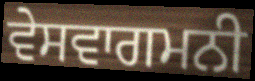
ਵੇਸਵਾਗਮਨੀ